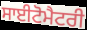
ਸਾਈਟੋਮੈਟਰੀ